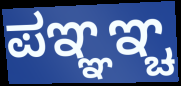
ಪಞ್ಞಞ್ಚ